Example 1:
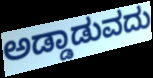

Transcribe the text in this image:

ಅಡ್ಡಾಡುವದು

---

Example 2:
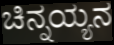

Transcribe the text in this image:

ಚಿನ್ನಯ್ಯನ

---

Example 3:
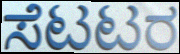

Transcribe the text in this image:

ಸೆಟಟರ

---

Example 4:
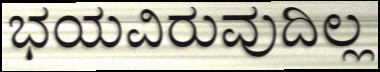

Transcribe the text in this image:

ಭಯವಿರುವುದಿಲ್ಲ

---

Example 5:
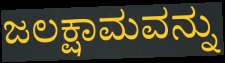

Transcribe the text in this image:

ಜಲಕ್ಷಾಮವನ್ನು